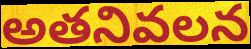
అతనివలన